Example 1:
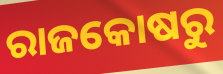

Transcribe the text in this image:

ରାଜକୋଷରୁ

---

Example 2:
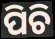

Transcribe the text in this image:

ପିଚି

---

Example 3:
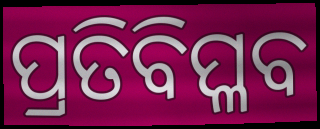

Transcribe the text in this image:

ପ୍ରତିବିପ୍ଳବ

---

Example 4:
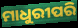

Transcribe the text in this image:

ମାଧୁରୀପରି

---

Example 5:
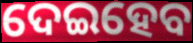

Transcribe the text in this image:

ଦେଇହେବ